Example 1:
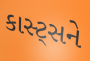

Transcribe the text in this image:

કાસ્ટ્સને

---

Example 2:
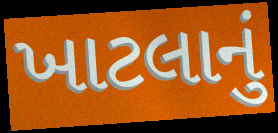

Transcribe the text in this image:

ખાટલાનું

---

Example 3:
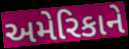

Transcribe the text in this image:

અમેરિકાને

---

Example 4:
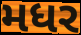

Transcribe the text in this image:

મધર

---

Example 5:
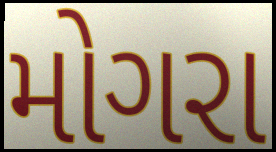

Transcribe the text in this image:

મોગરા